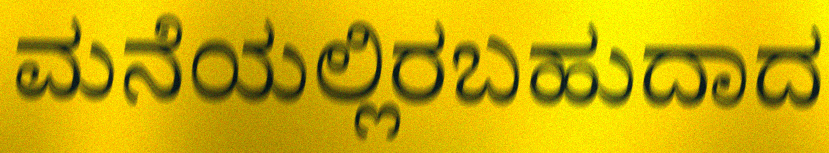
ಮನೆಯಲ್ಲಿರಬಹುದಾದ